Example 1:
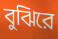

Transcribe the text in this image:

বুঝিরে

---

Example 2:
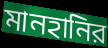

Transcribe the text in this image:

মানহানির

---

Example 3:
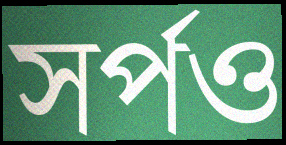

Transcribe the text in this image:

সর্পও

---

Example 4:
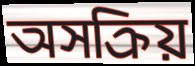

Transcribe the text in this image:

অসক্রিয়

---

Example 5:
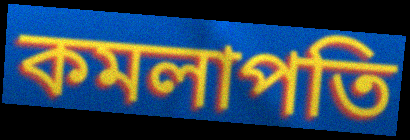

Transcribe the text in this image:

কমলাপতি